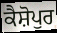
ਕੈਸ਼ੋਪੁਰ